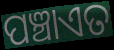
ପଞ୍ଚାଏତ